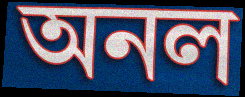
অনল